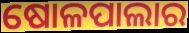
ଷୋଳପାଲାର